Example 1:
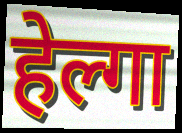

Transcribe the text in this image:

हेल्गा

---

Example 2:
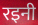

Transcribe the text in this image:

रइनी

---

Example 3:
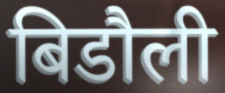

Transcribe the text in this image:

बिडौली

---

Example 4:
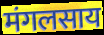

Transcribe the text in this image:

मंगलसाय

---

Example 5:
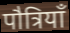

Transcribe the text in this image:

पौत्रियाँ